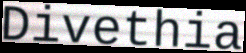
Divethia